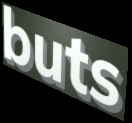
buts